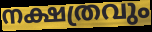
നക്ഷത്രവും